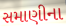
સમાણીના